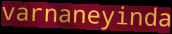
varnaneyinda